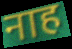
नाह